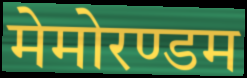
मेमोरण्डम